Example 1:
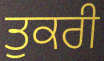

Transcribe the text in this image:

ਤੁਕਰੀ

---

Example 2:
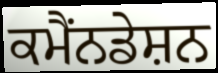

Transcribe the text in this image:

ਕਮੈਂਨਡੇਸ਼ਨ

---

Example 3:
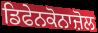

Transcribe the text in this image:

ਡਿਫੇਨਕੋਨਾਜ਼ੋਲ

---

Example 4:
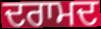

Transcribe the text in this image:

ਦਰਾਮਦ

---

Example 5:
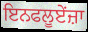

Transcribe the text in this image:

ਇਨਫਲੂਏਂਜ਼ਾ